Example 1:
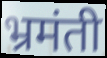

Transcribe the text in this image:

भ्रमंती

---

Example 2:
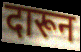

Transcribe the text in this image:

दारून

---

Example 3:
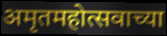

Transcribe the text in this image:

अमृतमहोत्सवाच्या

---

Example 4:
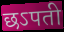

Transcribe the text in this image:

छऽपती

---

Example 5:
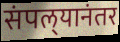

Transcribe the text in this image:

संपल्यानंतर